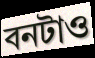
বনটাও